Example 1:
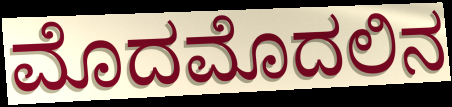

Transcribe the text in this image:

ಮೊದಮೊದಲಿನ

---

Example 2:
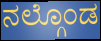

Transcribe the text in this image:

ನಲ್ಗೊಂಡ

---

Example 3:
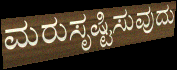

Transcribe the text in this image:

ಮರುಸೃಷ್ಟಿಸುವುದು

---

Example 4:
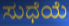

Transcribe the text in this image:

ಸುಧೆಯೆ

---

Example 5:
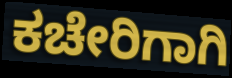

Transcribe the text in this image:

ಕಚೇರಿಗಾಗಿ